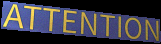
ATTENTION